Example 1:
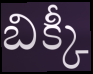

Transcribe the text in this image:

బిక్కీ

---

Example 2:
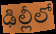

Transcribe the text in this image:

ఢిల్లీలో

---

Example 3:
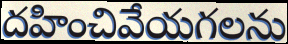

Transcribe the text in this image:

దహించివేయగలను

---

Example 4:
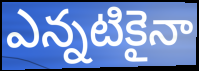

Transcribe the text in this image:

ఎన్నటికైనా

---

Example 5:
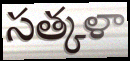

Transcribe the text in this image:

సత్కళా